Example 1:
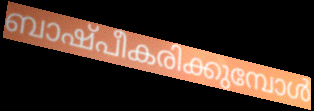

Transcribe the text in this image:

ബാഷ്പീകരിക്കുമ്പോൾ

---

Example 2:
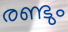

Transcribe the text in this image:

രണ്ടും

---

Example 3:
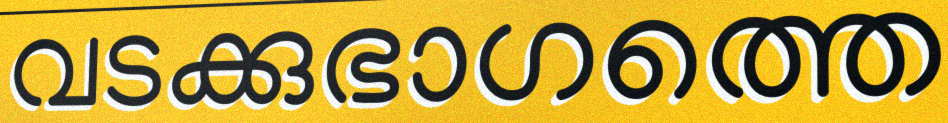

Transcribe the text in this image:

വടക്കുഭാഗത്തെ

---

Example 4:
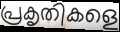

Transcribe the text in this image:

പ്രകൃതികളെ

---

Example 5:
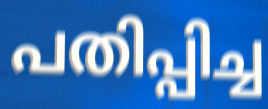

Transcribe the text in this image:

പതിപ്പിച്ച